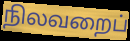
நிலவறைப்